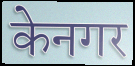
केनगर